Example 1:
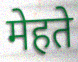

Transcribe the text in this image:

मेहते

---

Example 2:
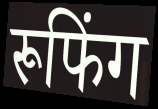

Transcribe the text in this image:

रूफिंग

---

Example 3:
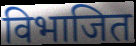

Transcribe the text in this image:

विभाजित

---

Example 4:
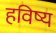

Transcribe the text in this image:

हविष्य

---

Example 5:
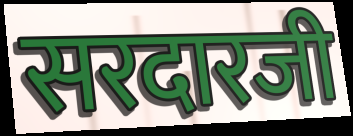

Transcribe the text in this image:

सरदारजी